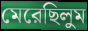
মেরেছিলুম